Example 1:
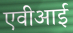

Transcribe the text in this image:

एवीआई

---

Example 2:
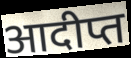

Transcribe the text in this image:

आदीप्त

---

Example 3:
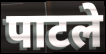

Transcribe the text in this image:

पाटले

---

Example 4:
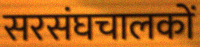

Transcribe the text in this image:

सरसंघचालकों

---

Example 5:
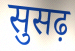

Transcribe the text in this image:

सुसढ़